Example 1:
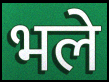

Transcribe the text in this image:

भले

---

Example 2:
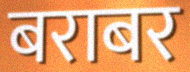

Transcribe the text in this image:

बराबर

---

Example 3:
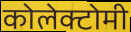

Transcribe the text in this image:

कोलेक्टोमी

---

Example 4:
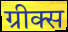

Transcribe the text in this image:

ग्रीक्स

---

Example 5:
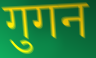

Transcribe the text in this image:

गुगन